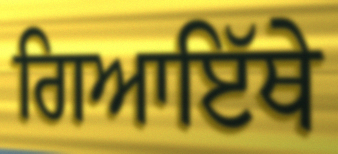
ਗਿਆਇੱਥੇ